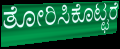
ತೋರಿಸಿಕೊಟ್ಟರೆ